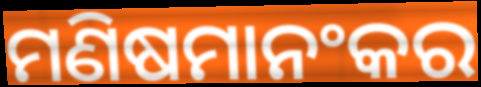
ମଣିଷମାନଂକର